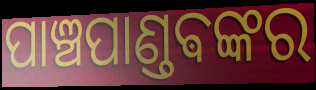
ପାଞ୍ଚପାଣ୍ଡଵଙ୍କର